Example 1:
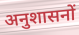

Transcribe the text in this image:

अनुशासनों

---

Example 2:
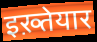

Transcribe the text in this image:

इख़्तेयार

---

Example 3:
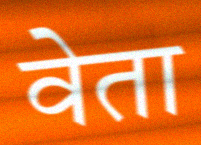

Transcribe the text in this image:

वेता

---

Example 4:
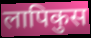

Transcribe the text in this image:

लापिकुस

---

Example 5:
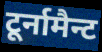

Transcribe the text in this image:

टूर्नामैन्ट